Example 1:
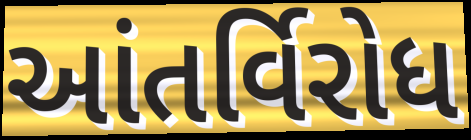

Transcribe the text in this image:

આંતર્વિરોધ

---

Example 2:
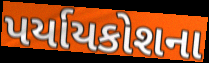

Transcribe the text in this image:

પર્યાયકોશના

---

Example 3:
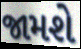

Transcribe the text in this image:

જામશે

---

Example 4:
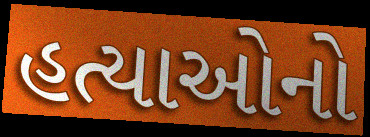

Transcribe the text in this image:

હત્યાઓનો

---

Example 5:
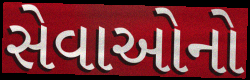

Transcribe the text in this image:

સેવાઓનો